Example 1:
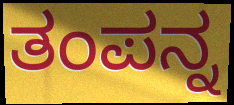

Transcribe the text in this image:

ತಂಪನ್ನ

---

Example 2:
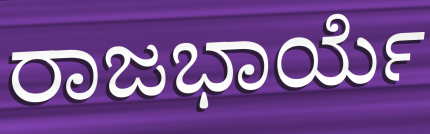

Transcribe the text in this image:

ರಾಜಭಾರ್ಯೆ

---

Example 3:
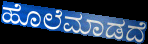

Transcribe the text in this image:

ಹೊಲೆಮಾಡದೆ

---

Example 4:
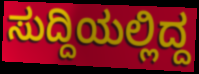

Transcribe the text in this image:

ಸುದ್ದಿಯಲ್ಲಿದ್ದ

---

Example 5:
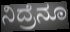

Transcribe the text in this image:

ನಿದ್ರೆನೂ